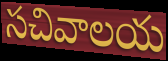
సచివాలయ